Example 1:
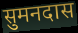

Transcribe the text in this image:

सुमनदास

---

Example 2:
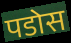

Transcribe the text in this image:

पडोस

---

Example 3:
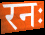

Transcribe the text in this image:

रनः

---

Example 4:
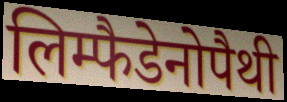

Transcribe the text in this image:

लिम्फैडेनोपैथी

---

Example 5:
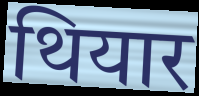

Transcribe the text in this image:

थियार